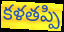
కళతప్పి